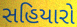
સહિયારો